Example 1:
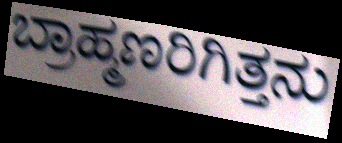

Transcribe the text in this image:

ಬ್ರಾಹ್ಮಣರಿಗಿತ್ತನು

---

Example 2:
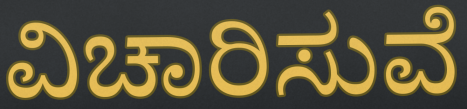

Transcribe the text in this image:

ವಿಚಾರಿಸುವೆ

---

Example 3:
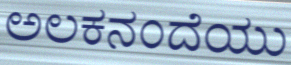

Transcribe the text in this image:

ಅಲಕನಂದೆಯು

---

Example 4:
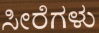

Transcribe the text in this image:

ಸೀರೆಗಳು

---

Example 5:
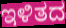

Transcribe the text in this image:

ಇಳಿತದ